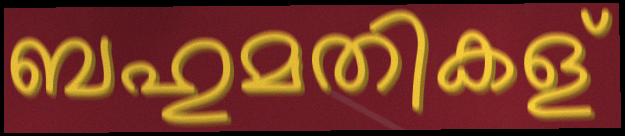
ബഹുമതികള്